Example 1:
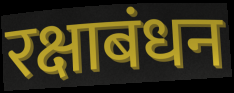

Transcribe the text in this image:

रक्षाबंधन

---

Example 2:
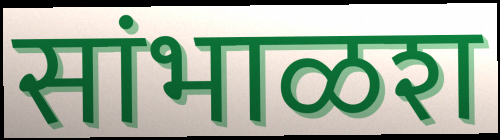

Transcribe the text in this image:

सांभाळश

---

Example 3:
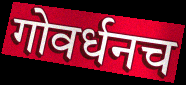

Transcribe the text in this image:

गोवर्धनच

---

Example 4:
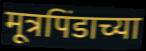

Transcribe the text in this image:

मूत्रपिंडाच्या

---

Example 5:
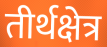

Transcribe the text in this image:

तीर्थक्षेत्र